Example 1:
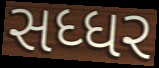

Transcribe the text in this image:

સધ્ધર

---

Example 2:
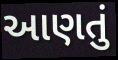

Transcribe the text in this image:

આણતું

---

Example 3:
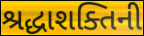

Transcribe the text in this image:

શ્રદ્ધાશક્તિની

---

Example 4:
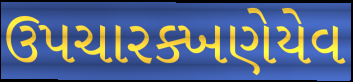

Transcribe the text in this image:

ઉપચારક્ખણેયેવ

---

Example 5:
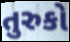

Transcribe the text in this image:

તુરુકો